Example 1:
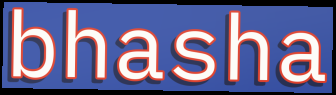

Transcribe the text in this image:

bhasha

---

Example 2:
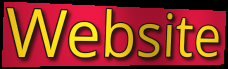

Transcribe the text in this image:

Website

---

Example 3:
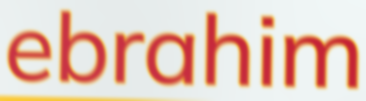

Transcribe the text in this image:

ebrahim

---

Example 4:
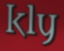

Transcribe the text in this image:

kly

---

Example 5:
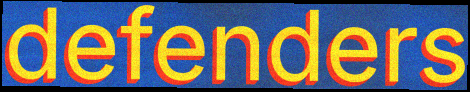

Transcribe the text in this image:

defenders